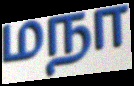
மநா